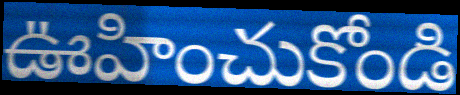
ఊహించుకోండి